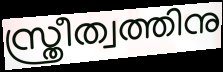
സ്ത്രീത്വത്തിനു